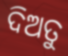
ଦିଅତୁ